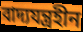
বাদ্যযন্ত্ৰহীন